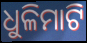
ଧୁଳିମାଟି